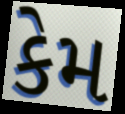
કેમ